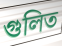
গুলিত